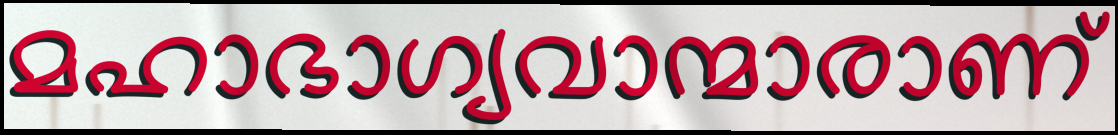
മഹാഭാഗ്യവാന്മാരാണ്